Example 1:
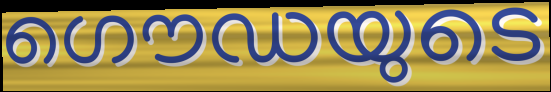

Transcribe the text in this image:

ഗൌഡയുടെ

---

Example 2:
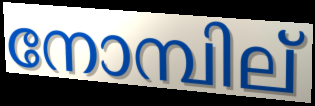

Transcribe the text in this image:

നോമ്പില്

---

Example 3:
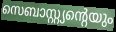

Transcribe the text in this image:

സെബാസ്റ്റ്യന്റെയും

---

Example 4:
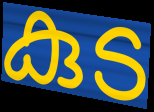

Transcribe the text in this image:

കുട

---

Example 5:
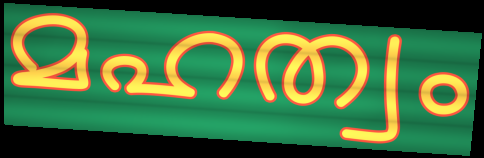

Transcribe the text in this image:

മഹത്വം